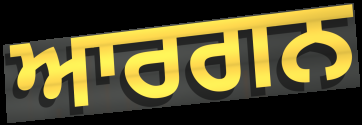
ਆਰਗਨ